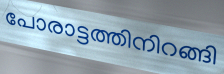
പോരാട്ടത്തിനിറങ്ങി